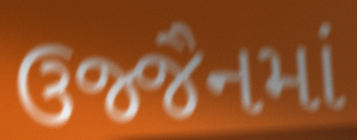
ઉજ્જૈનમાં